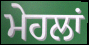
ਮੇਹਲਾਂ